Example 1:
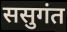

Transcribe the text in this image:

ससुगंत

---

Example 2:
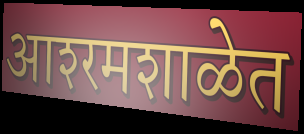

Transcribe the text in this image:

आश्रमशाळेत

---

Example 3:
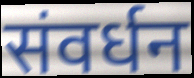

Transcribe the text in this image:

संवर्धन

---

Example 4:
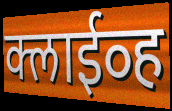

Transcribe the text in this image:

क्लाईव्ह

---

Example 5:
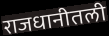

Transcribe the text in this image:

राजधानीतली